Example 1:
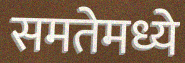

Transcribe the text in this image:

समतेमध्ये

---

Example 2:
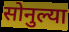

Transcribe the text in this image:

सोनुल्या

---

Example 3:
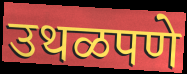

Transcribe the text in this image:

उथळपणे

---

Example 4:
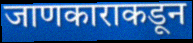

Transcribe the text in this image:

जाणकाराकडून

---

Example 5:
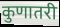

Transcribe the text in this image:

कुणातरी